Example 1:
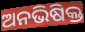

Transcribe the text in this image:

ଅନଭିଷିକ୍ତ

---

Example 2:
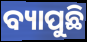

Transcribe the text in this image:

ବ୍ୟାପୁଛି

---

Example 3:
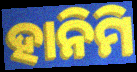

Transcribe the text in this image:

ହାନିମି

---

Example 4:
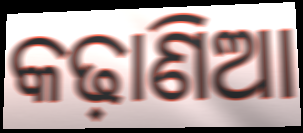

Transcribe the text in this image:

କଢ଼ାଣିଆ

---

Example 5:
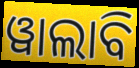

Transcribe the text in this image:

ୱାଲାବି